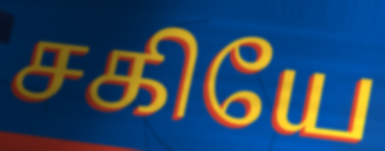
சகியே